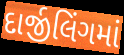
દાર્જીલિંગમાં